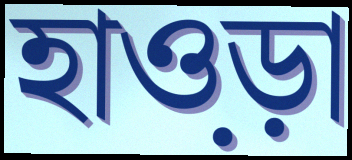
হাও়ড়া